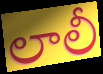
లాలీ